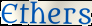
Ethers